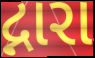
દ્નારા